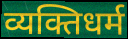
व्यक्तिधर्म